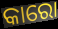
କାରୋ